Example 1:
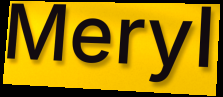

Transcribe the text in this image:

Meryl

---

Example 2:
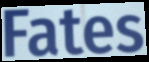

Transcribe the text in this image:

Fates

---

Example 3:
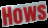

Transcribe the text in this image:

Hows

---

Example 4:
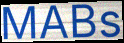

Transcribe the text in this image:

MABs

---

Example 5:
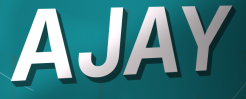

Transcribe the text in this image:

AJAY